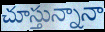
చూస్తున్నానా